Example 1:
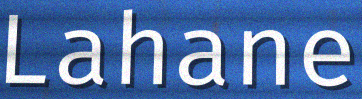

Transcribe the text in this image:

Lahane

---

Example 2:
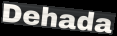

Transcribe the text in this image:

Dehada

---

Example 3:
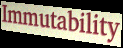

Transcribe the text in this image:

Immutability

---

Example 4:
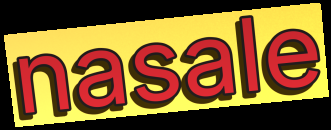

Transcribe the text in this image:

nasale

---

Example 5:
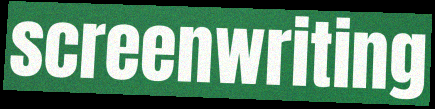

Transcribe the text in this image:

screenwriting